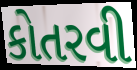
કોતરવી